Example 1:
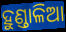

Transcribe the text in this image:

ହୁଣ୍ଡାଳିଆ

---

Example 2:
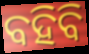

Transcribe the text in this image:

ବହିବି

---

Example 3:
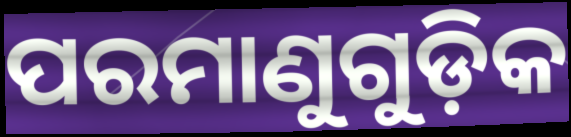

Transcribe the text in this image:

ପରମାଣୁଗୁଡ଼ିକ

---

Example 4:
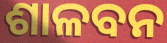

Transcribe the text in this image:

ଶାଳବନ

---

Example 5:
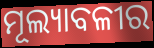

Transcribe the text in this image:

ମୂଲ୍ୟାବଳୀର